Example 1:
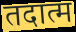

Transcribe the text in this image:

तदात्म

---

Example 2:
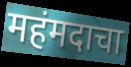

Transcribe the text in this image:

महंमदाचा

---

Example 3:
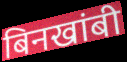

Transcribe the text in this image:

बिनखांबी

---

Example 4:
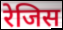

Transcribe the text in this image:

रेजिस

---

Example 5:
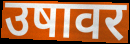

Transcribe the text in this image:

उषावर